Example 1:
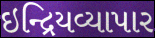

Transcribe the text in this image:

ઇન્દ્રિયવ્યાપાર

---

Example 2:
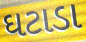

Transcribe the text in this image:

ઘટાડા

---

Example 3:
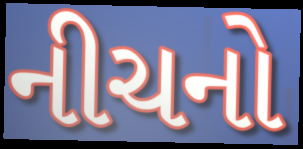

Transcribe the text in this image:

નીચનો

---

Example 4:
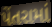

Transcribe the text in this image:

પેંતરામાં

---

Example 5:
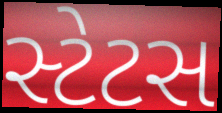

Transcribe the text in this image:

સ્ટેટસ